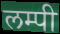
लम्पी